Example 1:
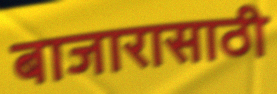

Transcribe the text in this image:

बाजारासाठी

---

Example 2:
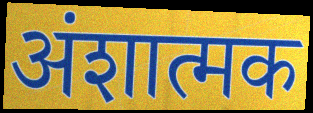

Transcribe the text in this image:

अंशात्मक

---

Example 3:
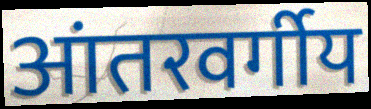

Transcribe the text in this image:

आंतरवर्गीय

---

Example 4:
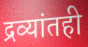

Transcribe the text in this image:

द्रव्यांतही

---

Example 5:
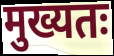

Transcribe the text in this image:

मुख्यतः